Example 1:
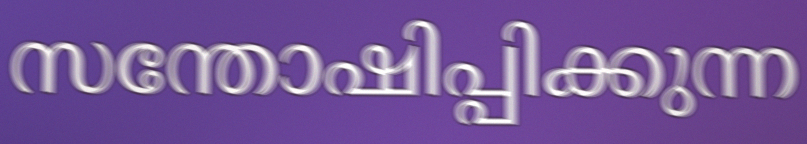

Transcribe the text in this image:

സന്തോഷിപ്പിക്കുന്ന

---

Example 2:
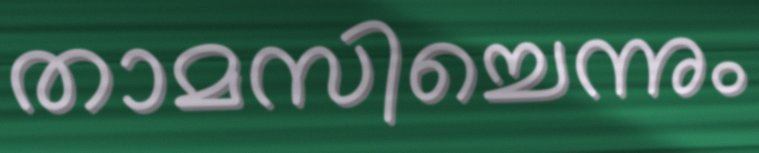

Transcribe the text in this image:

താമസിച്ചെന്നും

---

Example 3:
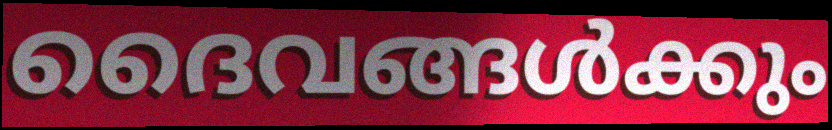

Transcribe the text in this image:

ദൈവങ്ങൾക്കും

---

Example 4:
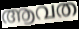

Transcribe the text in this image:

ആവത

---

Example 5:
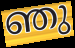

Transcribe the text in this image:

ഞു